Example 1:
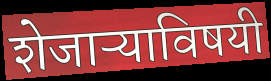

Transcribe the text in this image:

शेजाऱ्याविषयी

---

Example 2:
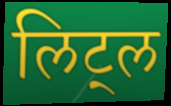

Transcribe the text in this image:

लिट्‌ल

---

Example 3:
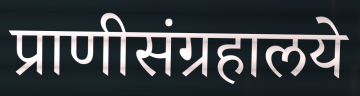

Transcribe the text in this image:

प्राणीसंग्रहालये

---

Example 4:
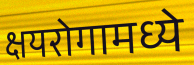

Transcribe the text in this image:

क्षयरोगामध्ये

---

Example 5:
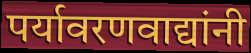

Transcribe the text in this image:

पर्यावरणवाद्यांनी